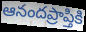
ఆనందప్రాప్తికి